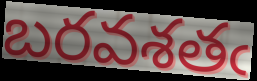
బరవశతఁ